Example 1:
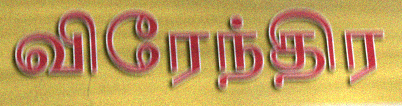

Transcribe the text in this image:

விரேந்திர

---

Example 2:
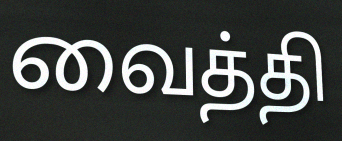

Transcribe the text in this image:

வைத்தி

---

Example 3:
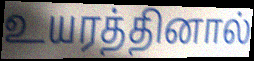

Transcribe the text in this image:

உயரத்தினால்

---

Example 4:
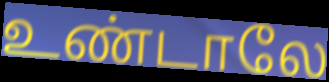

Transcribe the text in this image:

உண்டாலே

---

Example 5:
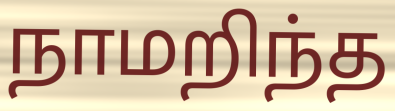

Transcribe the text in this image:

நாமறிந்த